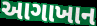
આગાખાન